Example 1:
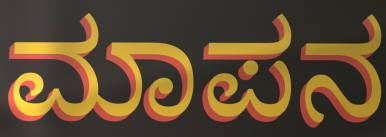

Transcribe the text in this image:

ಮಾಪನ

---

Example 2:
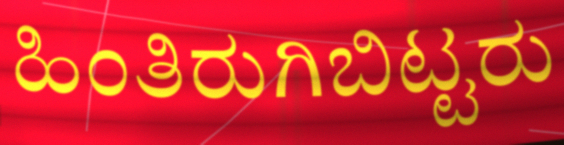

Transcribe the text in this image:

ಹಿಂತಿರುಗಿಬಿಟ್ಟರು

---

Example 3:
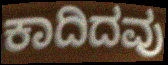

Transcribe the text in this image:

ಕಾದಿದವು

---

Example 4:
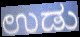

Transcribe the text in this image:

ಉಡು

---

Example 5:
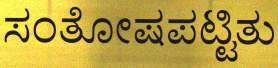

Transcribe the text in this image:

ಸಂತೋಷಪಟ್ಟಿತು